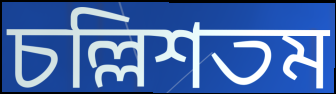
চল্লিশতম